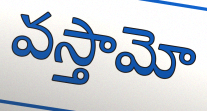
వస్తామో